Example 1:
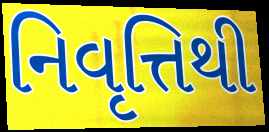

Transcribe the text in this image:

નિવૃત્તિથી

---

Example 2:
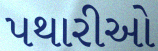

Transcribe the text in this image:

પથારીઓ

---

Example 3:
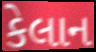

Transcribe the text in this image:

કેલાન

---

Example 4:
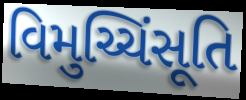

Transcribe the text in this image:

વિમુચ્ચિંસૂતિ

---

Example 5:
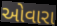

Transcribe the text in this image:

ઓવારા